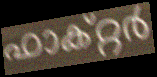
ഫാക്റ്റർ